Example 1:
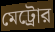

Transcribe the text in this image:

মেট্রোর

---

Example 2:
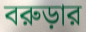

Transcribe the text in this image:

বরুড়ার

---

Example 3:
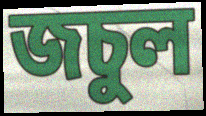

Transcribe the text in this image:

জচুল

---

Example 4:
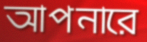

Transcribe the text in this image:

আপনারে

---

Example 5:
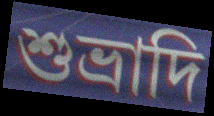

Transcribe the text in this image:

শুভ্রাদি